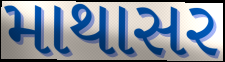
માથાસર